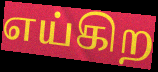
எய்கிற